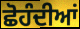
ਛੋਹੰਦੀਆਂ